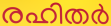
രഹിതർ